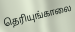
தெரியுங்காலை